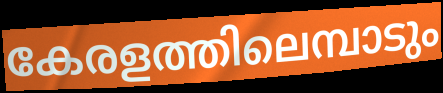
കേരളത്തിലെമ്പാടും